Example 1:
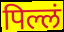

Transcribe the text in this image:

पिल्लं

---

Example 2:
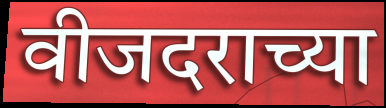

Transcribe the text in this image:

वीजदराच्या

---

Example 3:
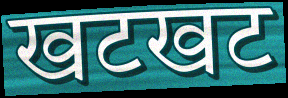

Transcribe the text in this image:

खटखट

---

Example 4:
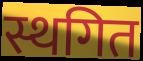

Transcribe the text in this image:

स्थगित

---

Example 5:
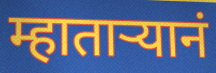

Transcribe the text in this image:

म्हातार्‍यानं